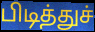
பிடித்துச்